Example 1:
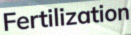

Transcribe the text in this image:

Fertilization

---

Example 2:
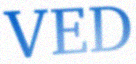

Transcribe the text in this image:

VED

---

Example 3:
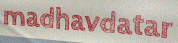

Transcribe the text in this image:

madhavdatar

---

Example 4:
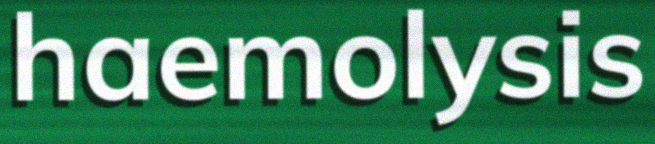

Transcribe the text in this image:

haemolysis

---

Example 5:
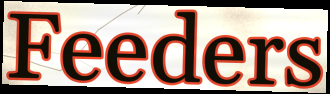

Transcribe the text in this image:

Feeders